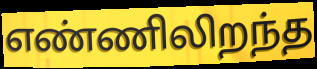
எண்ணிலிறந்த